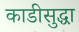
काडीसुद्धा